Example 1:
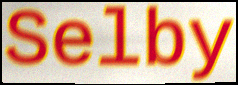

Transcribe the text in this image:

Selby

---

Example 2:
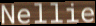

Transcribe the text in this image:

Nellie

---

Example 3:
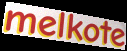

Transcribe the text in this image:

melkote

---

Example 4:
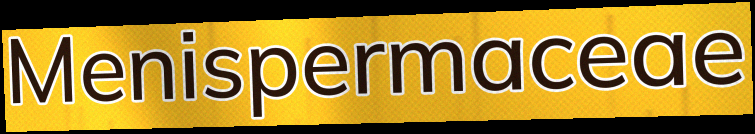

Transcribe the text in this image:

Menispermaceae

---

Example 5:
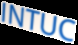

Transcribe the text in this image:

INTUC